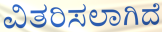
ವಿತರಿಸಲಾಗಿದೆ